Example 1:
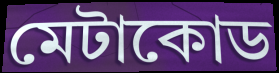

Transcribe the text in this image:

মেটাকোড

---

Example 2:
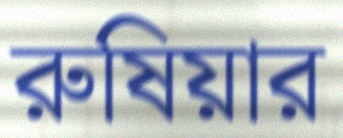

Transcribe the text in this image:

রুষিয়ার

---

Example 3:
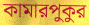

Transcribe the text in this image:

কামারপুকুর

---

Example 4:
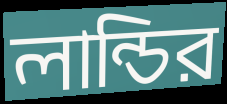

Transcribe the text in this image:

লান্ডির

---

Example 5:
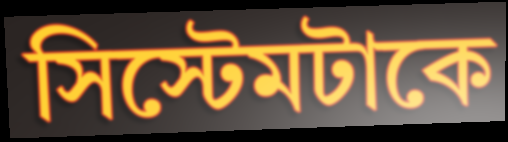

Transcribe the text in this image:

সিস্টেমটাকে